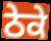
ਠੇਕੇ